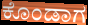
ಕೊಂಡಾಗ